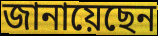
জানায়েছেন